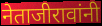
नेताजीरावांनी